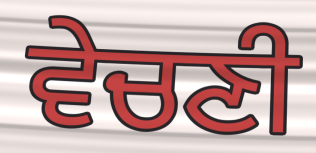
ਵੇਚਣੀ